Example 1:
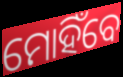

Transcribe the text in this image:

ମୋହିଁବେ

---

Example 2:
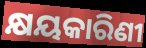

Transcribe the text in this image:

କ୍ଷୟକାରିଣୀ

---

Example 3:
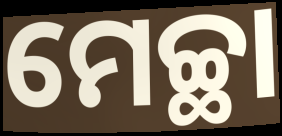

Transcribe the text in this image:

ମେଚ୍ଛା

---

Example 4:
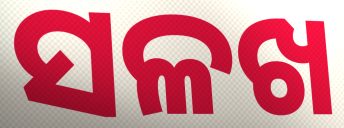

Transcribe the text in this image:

ସଳଖ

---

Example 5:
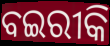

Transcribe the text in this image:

ବଇରୀକି